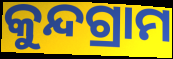
କୁନ୍ଦଗ୍ରାମ